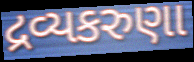
દ્રવ્યકરુણા